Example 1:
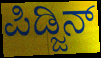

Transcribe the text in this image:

ಪಿಡ್ಜಿನ್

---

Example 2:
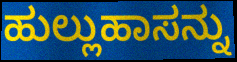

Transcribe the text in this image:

ಹುಲ್ಲುಹಾಸನ್ನು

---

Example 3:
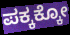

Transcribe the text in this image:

ಪಕ್ಕಕ್ಕೋ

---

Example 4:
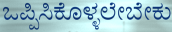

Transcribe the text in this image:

ಒಪ್ಪಿಸಿಕೊಳ್ಳಲೇಬೇಕು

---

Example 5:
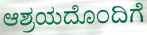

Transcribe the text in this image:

ಆಶ್ರಯದೊಂದಿಗೆ